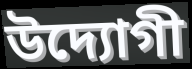
উদ্যোগী